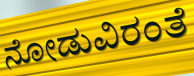
ನೋಡುವಿರಂತೆ